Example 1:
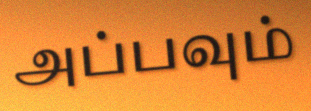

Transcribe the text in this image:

அப்பவும்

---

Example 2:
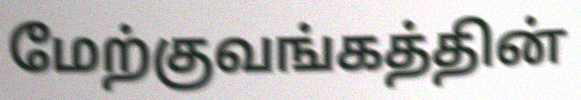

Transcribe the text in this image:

மேற்குவங்கத்தின்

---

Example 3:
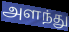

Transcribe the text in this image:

அளந்து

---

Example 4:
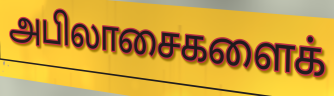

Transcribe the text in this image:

அபிலாசைகளைக்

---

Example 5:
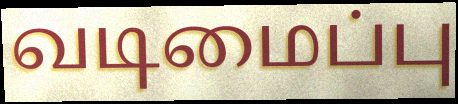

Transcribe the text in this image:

வடிமைப்பு